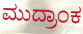
ಮುದ್ರಾಂಕ